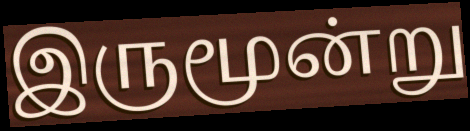
இருமூன்று